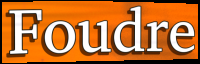
Foudre